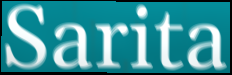
Sarita